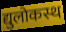
द्युलोकस्थ